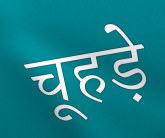
चूहड़े